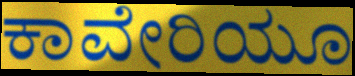
ಕಾವೇರಿಯೂ